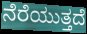
ನೆರೆಯುತ್ತದೆ